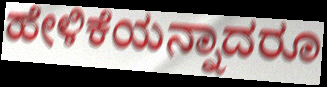
ಹೇಳಿಕೆಯನ್ನಾದರೂ